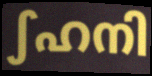
ഽഹനി